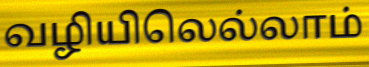
வழியிலெல்லாம்